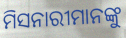
ମିସନାରୀମାନଙ୍କୁ